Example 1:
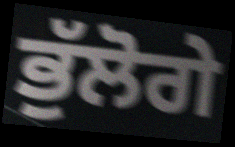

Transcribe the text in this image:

ਭੁੱਲੋਗੇ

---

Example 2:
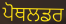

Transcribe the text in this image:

ਪੋਥਲਡਰ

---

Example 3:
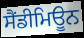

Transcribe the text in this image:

ਸੈਂਡੀਮਿਊਨ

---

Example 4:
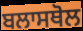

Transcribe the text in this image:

ਬਲਾਸਥੋਲ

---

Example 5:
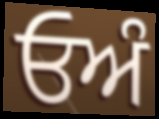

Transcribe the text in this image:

ਓਅੰ